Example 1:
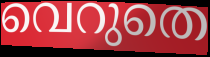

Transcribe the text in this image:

വെറുതെ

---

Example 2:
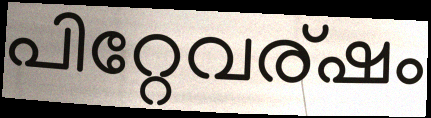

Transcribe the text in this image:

പിറ്റേവര്ഷം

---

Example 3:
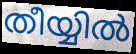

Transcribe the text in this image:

തീയ്യിൽ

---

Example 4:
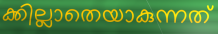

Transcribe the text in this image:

ക്കില്ലാതെയാകുന്നത്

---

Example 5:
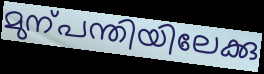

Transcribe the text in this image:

മുന്പന്തിയിലേക്കു